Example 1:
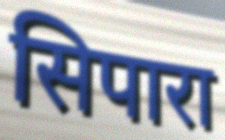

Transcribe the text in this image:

सिपारा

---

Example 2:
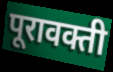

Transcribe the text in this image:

पूरावक्ती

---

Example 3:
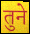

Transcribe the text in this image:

तुने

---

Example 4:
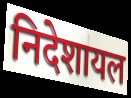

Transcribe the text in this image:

निदेशायल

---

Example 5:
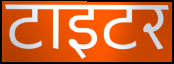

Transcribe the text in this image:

टाइटर